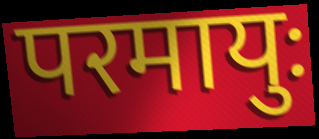
परमायुः